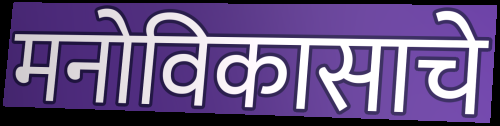
मनोविकासाचे